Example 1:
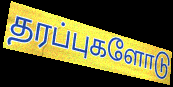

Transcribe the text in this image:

தரப்புகளோடு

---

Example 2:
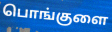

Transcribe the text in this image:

பொங்குளை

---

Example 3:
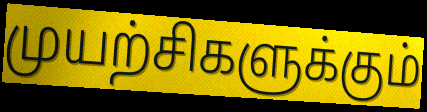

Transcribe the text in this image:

முயற்சிகளுக்கும்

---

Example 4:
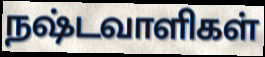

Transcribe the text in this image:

நஷ்டவாளிகள்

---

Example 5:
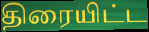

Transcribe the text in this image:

திரையிட்ட